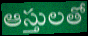
ఆస్తులతో